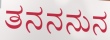
ತನನನುನ